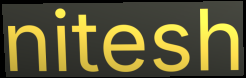
nitesh